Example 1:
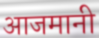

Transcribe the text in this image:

आजमानी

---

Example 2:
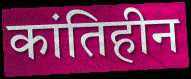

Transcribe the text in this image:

कांतिहीन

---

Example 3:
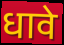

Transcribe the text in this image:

धावे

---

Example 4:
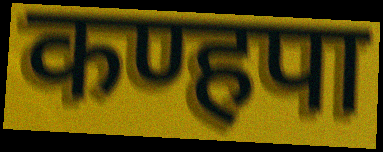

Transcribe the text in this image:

कण्हपा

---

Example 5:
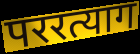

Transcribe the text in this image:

पररत्याग